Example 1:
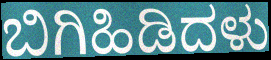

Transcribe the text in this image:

ಬಿಗಿಹಿಡಿದಳು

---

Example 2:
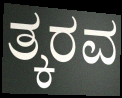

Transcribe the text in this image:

ತ್ಕರವ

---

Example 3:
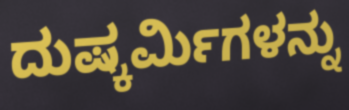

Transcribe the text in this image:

ದುಷ್ಕರ್ಮಿಗಳನ್ನು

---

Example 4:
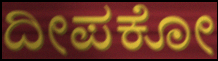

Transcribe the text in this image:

ದೀಪಕೋ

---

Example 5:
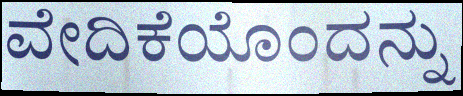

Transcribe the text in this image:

ವೇದಿಕೆಯೊಂದನ್ನು